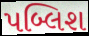
પબ્લિશ